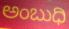
ಅಂಬುಧಿ